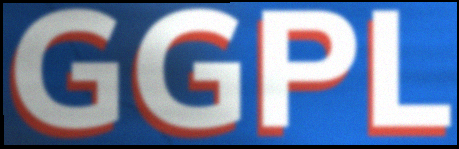
GGPL